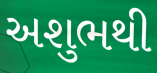
અશુભથી